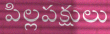
పిల్లపక్షులు